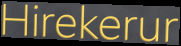
Hirekerur